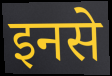
इनसे